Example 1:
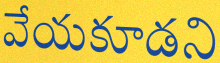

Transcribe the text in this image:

వేయకూడని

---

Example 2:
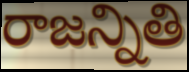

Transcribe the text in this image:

రాజన్నితి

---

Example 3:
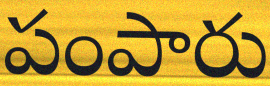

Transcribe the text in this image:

పంపారు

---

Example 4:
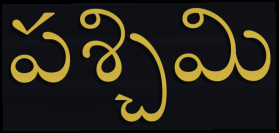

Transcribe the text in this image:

పశ్చిమి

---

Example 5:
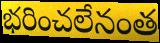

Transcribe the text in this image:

భరించలేనంత